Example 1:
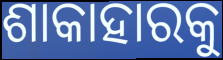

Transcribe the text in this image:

ଶାକାହାରକୁ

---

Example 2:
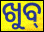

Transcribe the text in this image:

ଖୁବ୍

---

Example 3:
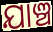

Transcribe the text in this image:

ଯାଞ୍ଚ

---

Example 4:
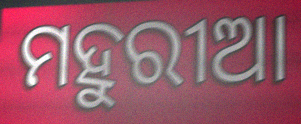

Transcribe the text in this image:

ମହୁରୀଆ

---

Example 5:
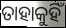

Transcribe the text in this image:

ତାହାକୁହିଁ